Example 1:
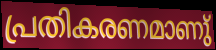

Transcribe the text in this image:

പ്രതികരണമാണു്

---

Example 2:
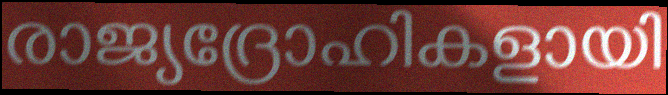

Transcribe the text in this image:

രാജ്യദ്രോഹികളായി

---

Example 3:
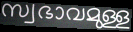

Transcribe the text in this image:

സ്വഭാവമുള്ള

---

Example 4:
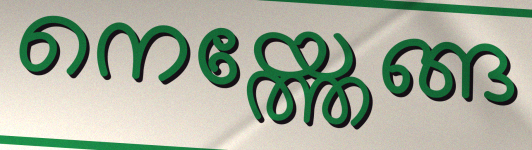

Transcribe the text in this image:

നെയ്ത്തേങ്ങ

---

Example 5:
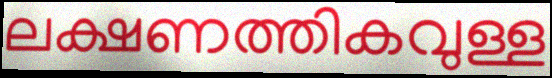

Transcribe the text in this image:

ലക്ഷണത്തികവുള്ള